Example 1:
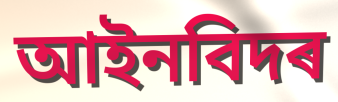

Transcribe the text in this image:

আইনবিদৰ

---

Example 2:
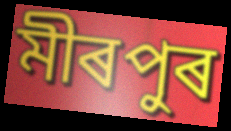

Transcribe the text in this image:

মীৰপুৰ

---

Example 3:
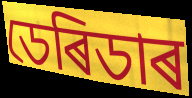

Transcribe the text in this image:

ডেৰিডাৰ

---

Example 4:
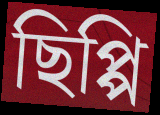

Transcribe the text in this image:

ছিপ্পি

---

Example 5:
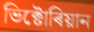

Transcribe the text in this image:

ভিক্টোৰিয়ান